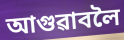
আগুৱাবলৈ